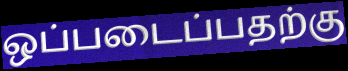
ஒப்படைப்பதற்கு